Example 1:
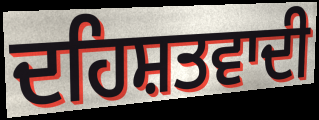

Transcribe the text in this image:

ਦਹਿਸ਼ਤਵਾਦੀ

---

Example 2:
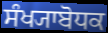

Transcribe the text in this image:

ਸੰਖ੍ਯਾਬੋਧਕ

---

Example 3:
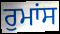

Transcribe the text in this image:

ਰੁਮਾਂਸ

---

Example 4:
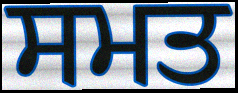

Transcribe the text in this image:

ਸਮਤ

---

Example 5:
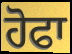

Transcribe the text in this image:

ਹੋਫਾ